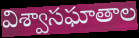
విశ్వాసఘాతాల